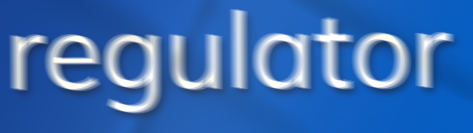
regulator